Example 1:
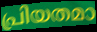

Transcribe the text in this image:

പ്രിയതമാ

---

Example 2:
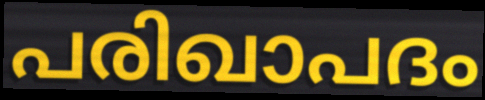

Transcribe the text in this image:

പരിഖാപദം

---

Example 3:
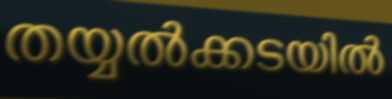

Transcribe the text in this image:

തയ്യൽക്കടയിൽ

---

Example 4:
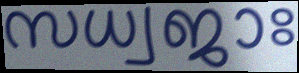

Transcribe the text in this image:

സധ്വജാഃ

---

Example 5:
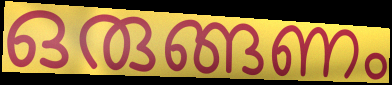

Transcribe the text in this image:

ഒരുങ്ങണം